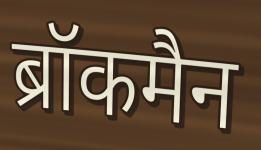
ब्रॉकमैन